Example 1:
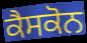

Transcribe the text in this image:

ਕੈਸਕੋਨ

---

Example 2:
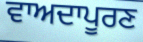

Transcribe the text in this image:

ਵਾਅਦਾਪੂਰਣ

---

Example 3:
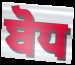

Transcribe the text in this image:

ਬੋਧ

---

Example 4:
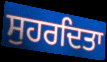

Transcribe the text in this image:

ਸੁਹਰਦਿਤਾ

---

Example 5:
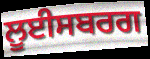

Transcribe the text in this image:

ਲੂਈਸਬਰਗ